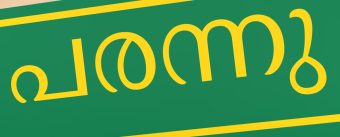
പരന്നു